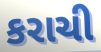
કરાચી